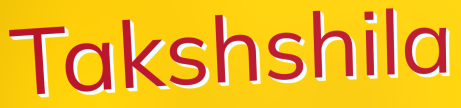
Takshshila